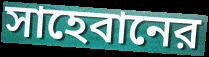
সাহেবানের